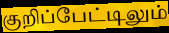
குறிப்பேட்டிலும்